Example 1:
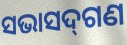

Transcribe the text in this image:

ସଭାସଦ୍‌ଗଣ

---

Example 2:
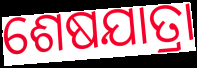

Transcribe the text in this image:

ଶେଷଯାତ୍ରା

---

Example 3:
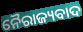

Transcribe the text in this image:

ନୈରାଜ୍ୟବାଦ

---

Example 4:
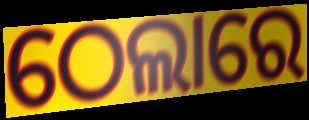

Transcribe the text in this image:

ଠେଲାରେ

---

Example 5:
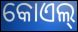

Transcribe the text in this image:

କୋଏଲ୍